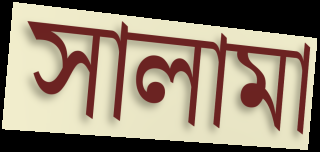
সালামা